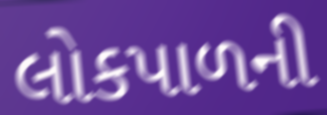
લોકપાળની